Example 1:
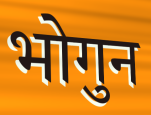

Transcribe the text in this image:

भोगुन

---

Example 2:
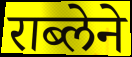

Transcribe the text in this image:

राब्लेने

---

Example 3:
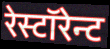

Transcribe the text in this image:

रेस्टॉरेन्ट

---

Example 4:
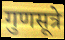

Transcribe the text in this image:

गुणसूत्रे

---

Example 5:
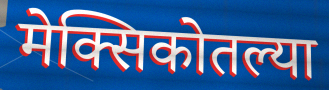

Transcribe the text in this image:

मेक्सिकोतल्या